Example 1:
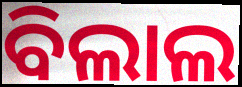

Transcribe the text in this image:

ବିଲାଲ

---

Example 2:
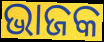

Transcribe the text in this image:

ଭାଜକ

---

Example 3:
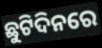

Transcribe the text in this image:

ଛୁଟିଦିନରେ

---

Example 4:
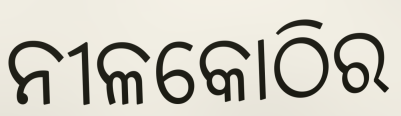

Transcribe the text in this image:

ନୀଳକୋଠିର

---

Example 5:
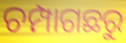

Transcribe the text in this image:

ଚମ୍ପାଗଛରୁ